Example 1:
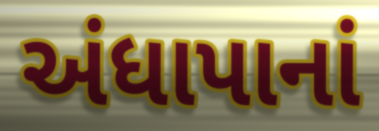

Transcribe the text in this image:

અંધાપાનાં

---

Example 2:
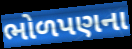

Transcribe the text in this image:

ભોળપણના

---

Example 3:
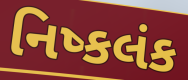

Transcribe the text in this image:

નિષ્કલંક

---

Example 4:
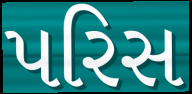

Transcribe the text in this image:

પરિસ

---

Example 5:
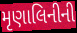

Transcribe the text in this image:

મૃણાલિનીની